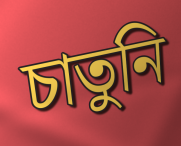
চাতুনি